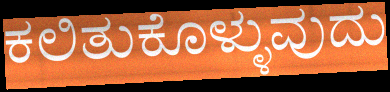
ಕಲಿತುಕೊಳ್ಳುವುದು